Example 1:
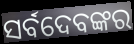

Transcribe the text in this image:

ସର୍ବଦେବଙ୍କର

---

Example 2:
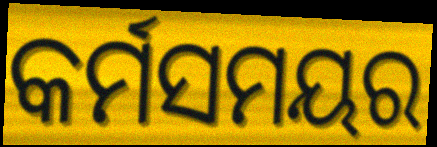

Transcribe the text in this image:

କର୍ମସମୟର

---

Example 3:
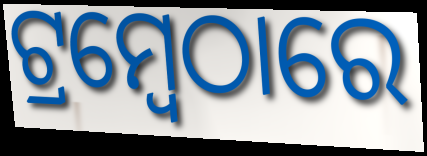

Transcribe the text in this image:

ଟ୍ରମ୍ବେଠାରେ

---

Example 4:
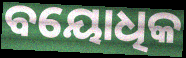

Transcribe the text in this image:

ବୟୋଧିକ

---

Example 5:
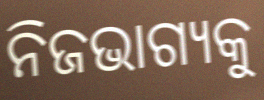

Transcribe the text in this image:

ନିଜଭାଗ୍ୟକୁ